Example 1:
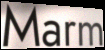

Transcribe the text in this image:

Marm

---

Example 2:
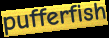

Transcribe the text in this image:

pufferfish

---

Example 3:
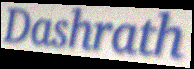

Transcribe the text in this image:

Dashrath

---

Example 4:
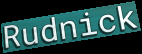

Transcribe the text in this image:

Rudnick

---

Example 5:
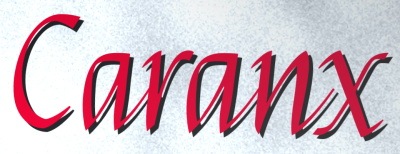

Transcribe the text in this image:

Caranx